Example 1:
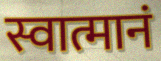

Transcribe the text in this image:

स्वात्मानं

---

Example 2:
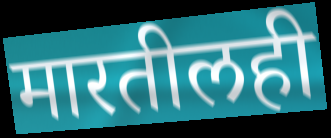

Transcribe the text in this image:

मारतीलही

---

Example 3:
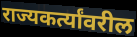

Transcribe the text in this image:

राज्यकर्त्यांवरील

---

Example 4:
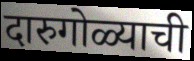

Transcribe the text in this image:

दारुगोळ्याची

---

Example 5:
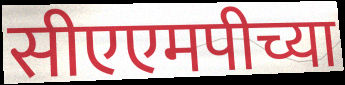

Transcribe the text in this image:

सीएएमपीच्या